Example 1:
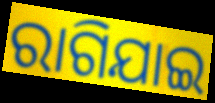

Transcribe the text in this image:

ରାଗିଯାଇ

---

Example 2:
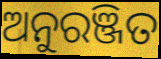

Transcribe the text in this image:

ଅନୁରଞ୍ଜିତ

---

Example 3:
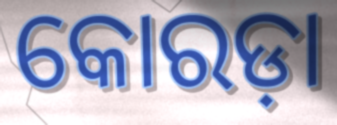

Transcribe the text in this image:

କୋରଡ଼ା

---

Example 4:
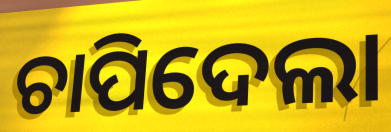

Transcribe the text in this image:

ଚାପିଦେଲା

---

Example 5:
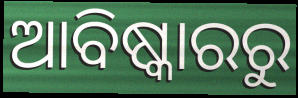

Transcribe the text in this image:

ଆବିଷ୍କାରରୁ